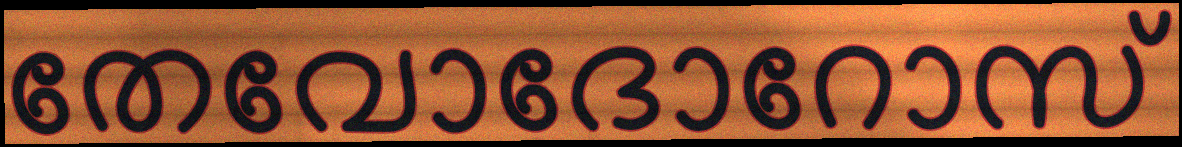
തേവോദോറോസ്